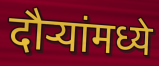
दौऱ्यांमध्ये